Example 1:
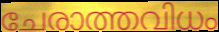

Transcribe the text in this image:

ചേരാത്തവിധം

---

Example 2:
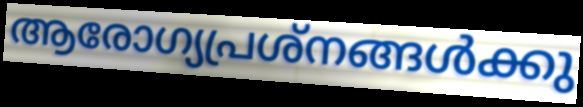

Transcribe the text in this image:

ആരോഗ്യപ്രശ്നങ്ങൾക്കു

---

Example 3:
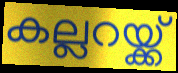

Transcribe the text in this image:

കല്ലറയ്ക്ക്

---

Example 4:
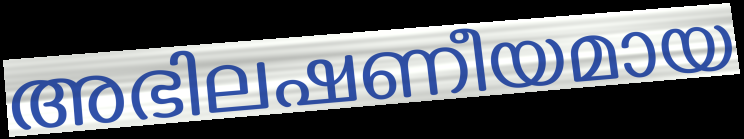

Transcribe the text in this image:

അഭിലഷണീയമായ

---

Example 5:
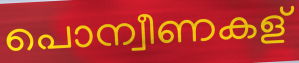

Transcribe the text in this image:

പൊന്വീണകള്